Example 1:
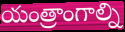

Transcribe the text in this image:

యంత్రాంగాల్ని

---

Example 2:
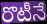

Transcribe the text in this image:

రొటీనే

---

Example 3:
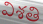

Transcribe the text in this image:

విశతి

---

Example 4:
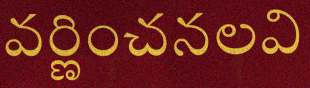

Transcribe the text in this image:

వర్ణించనలవి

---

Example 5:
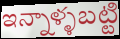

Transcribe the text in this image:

ఇన్నాళ్ళబట్టి